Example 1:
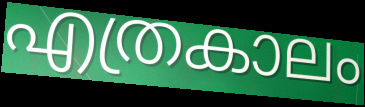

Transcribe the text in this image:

എത്രകാലം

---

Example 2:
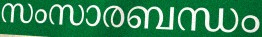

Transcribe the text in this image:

സംസാരബന്ധം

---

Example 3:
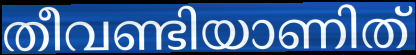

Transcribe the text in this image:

തീവണ്ടിയാണിത്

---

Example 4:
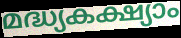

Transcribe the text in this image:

മദ്ധ്യകക്ഷ്യാം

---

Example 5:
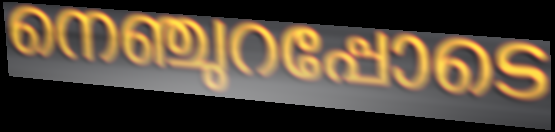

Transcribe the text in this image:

നെഞ്ചുറപ്പോടെ